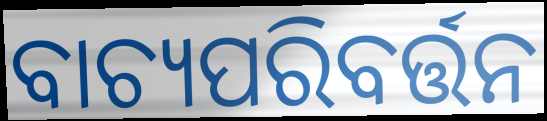
ବାଚ୍ୟପରିବର୍ତ୍ତନ